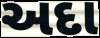
અદા